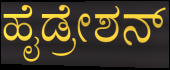
ಹೈಡ್ರೇಶನ್